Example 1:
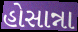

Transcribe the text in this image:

હોસાન્ના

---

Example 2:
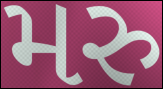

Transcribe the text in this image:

મરુ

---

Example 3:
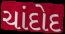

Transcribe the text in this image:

ચાંદોદ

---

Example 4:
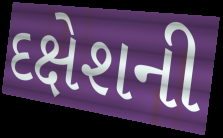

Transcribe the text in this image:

દક્ષેશની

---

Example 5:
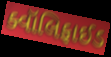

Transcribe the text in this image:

ક્વૉલિફાઈડ